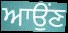
ਆਉਂਣ